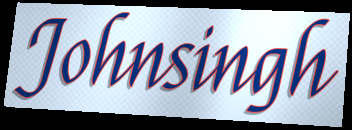
Johnsingh